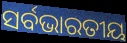
ସର୍ବଭାରତୀୟ